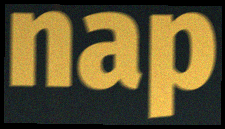
nap